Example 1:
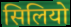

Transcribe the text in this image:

सिलियो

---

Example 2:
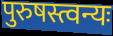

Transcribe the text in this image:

पुरुषस्त्वन्यः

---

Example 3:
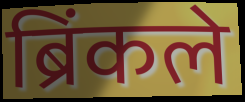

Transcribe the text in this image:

ब्रिंकले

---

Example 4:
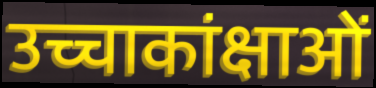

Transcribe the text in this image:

उच्चाकांक्षाओं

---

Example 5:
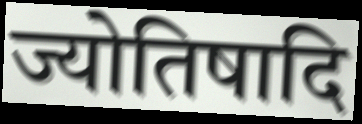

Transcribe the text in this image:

ज्योतिषादि